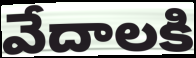
వేదాలకి